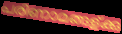
പരിണാമങ്ങള്ക്കു